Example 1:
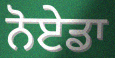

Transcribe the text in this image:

ਨੋਏਡਾ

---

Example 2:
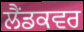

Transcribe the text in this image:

ਲੈਂਡਕਵਰ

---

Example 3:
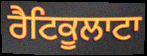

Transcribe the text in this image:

ਰੈਟਿਕੂਲਾਟਾ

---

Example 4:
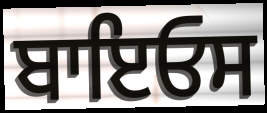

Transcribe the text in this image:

ਬਾਇਓਸ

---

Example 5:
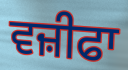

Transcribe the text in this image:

ਵਜ਼ੀਫਾ